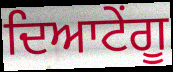
ਦਿਆਟੇਂਗੂ